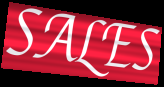
SALES